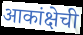
आकांक्षेची